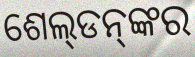
ଶେଲ୍‌ଡନ୍‌ଙ୍କର